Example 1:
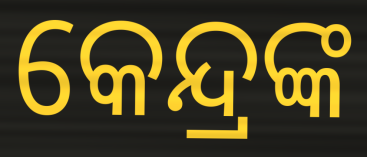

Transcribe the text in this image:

କେନ୍ଦ୍ରଙ୍କ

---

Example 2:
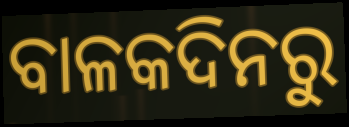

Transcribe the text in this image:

ବାଳକଦିନରୁ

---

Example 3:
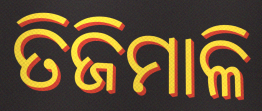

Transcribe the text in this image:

ତିଜିମାଳି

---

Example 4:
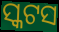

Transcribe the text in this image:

ସ୍କଟସ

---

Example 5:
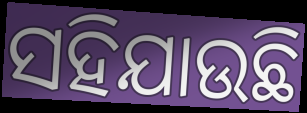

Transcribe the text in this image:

ସହିଯାଉଛି